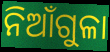
ନିଆଁଗୁଳା